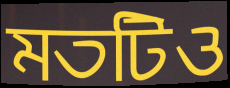
মতটিও